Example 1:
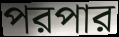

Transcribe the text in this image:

পরপার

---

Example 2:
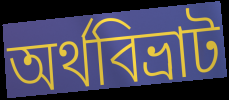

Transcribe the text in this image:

অর্থবিভ্রাট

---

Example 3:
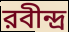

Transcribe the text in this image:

রবীন্দ্র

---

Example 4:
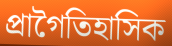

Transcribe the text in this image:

প্রাগৈতিহাসিক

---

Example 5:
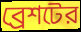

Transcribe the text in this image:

ব্রেশটের